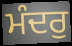
ਮੰਦਰੁ